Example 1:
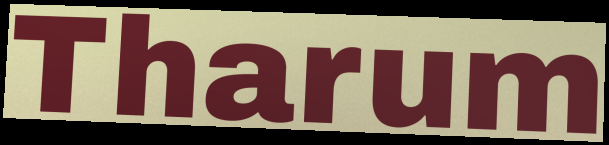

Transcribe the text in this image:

Tharum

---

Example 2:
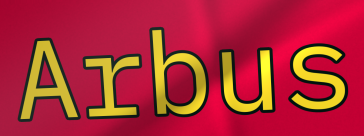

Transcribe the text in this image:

Arbus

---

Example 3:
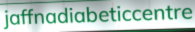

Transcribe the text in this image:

jaffnadiabeticcentre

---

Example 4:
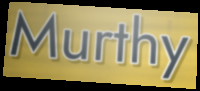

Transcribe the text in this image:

Murthy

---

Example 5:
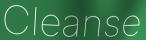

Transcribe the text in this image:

Cleanse